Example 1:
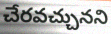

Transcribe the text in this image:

చేరవచ్చునని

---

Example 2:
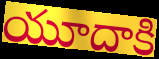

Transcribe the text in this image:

యూదాకి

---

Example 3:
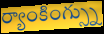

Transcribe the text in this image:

ర్యాంకింగ్స్ను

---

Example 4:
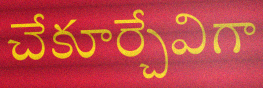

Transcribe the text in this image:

చేకూర్చేవిగా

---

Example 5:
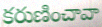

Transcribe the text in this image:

కరుణించావా